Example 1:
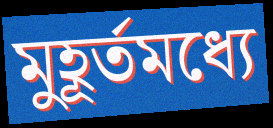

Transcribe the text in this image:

মুহূর্তমধ্যে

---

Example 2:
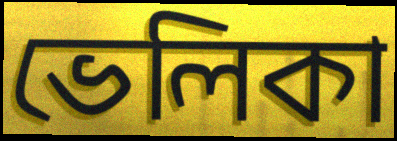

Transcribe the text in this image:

ভেলিকা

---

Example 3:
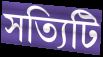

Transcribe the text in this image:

সত্যিটি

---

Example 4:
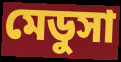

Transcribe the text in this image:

মেডুসা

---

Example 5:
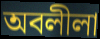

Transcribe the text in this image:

অবলীলা